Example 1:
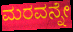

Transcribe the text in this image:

ಮರವನ್ನೇ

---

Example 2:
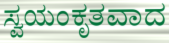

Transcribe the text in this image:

ಸ್ವಯಂಕೃತವಾದ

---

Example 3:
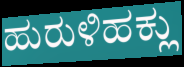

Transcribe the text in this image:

ಹುರುಳಿಹಕ್ಲು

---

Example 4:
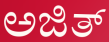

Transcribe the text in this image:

ಅಜಿತ್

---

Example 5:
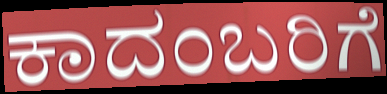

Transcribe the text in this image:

ಕಾದಂಬರಿಗೆ